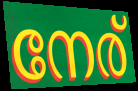
നേര്